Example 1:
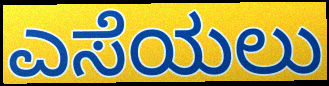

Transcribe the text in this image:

ಎಸೆಯಲು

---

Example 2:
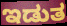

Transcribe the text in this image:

ಇಡುತ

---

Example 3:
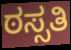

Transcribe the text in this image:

ಠಸ್ಸತಿ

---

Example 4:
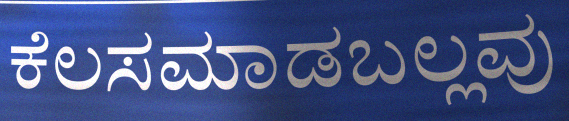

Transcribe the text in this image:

ಕೆಲಸಮಾಡಬಲ್ಲವು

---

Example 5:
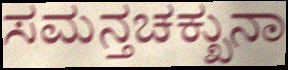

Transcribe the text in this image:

ಸಮನ್ತಚಕ್ಖುನಾ